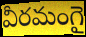
వీరమంగై